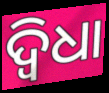
ଦ୍ୱିଧା